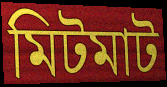
মিটমাট